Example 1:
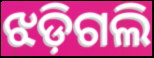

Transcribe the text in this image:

ଝଡ଼ିଗଲି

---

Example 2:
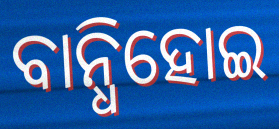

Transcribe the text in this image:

ବାନ୍ଧିହୋଇ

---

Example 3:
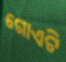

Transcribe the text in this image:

ଗୋଏଟି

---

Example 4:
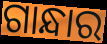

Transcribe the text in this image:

ଗାନ୍ଧାର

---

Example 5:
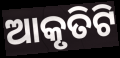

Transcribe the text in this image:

ଆକୃତିଟି